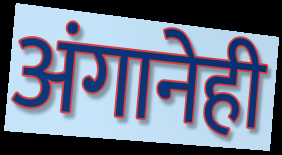
अंगानेही